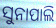
ସୁନାପାଲି